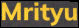
Mrityu